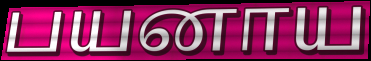
பயனாய